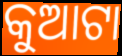
କୁଆଟା